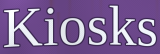
Kiosks